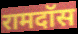
रामदॉस